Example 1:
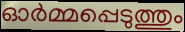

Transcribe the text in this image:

ഓർമ്മപ്പെടുത്തും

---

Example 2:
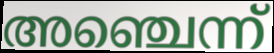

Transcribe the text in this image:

അഞ്ചെന്ന്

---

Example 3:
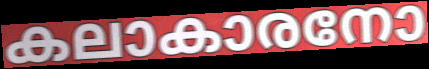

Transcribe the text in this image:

കലാകാരനോ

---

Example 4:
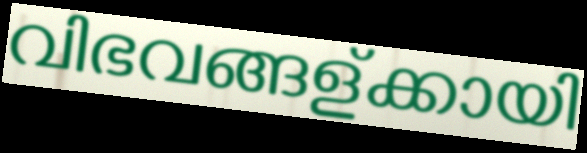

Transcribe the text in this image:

വിഭവങ്ങള്ക്കായി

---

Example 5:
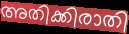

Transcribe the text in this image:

അതിക്കിരാതി